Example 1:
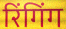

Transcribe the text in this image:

रिंगिंग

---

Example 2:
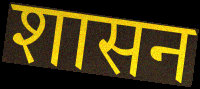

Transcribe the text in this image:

शासन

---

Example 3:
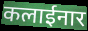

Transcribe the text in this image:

कलाईनार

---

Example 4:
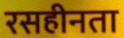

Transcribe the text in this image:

रसहीनता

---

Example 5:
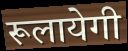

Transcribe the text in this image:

रूलायेगी